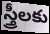
స్త్రీలకు